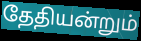
தேதியன்றும்